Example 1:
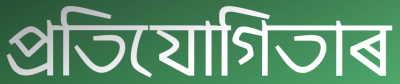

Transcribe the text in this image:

প্ৰতিযোগিতাৰ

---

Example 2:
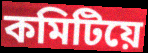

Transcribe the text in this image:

কমিটিয়ে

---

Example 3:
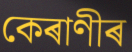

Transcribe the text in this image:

কেৰাণীৰ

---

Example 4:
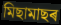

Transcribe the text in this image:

মিছামাছৰ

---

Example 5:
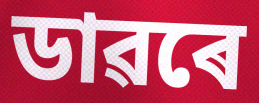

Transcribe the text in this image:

ডাৱৰে